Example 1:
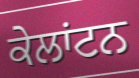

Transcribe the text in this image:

ਕੇਲਾਂਟਨ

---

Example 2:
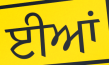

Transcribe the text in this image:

ਈਆਂ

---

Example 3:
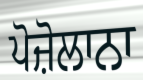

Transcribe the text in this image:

ਪੋਜ਼ੋਲਾਨਾ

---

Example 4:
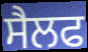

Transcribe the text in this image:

ਸੈਲਫ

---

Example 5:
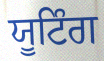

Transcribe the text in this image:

ਯੂਟਿੰਗ